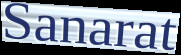
Sanarat